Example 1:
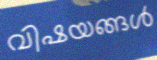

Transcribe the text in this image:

വിഷയങ്ങൾ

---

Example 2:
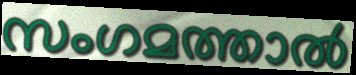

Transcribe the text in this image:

സംഗമത്താൽ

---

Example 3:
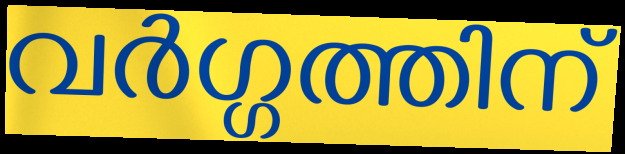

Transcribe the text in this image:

വർഗ്ഗത്തിന്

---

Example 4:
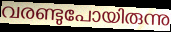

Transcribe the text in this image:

വരണ്ടുപോയിരുന്നു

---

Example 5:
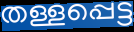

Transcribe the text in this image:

തള്ളപ്പെട്ട